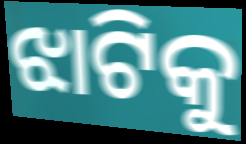
ଝାଟିକୁ